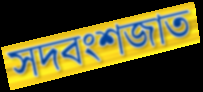
সদবংশজাত